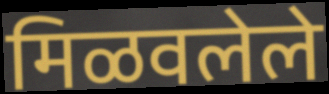
मिळवलेले